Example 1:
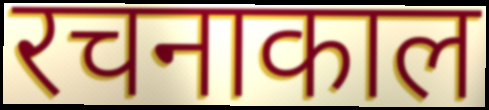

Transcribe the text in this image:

रचनाकाल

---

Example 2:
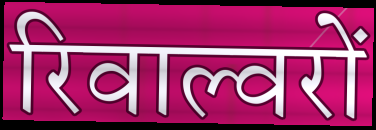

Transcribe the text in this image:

रिवाल्वरों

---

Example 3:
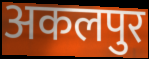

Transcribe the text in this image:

अकलपुर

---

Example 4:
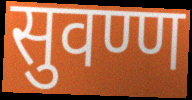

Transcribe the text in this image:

सुवण्ण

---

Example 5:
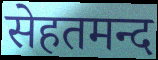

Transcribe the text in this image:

सेहतमन्द